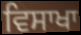
ਵਿਸਾਖਾ